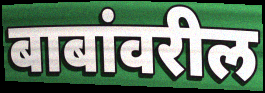
बाबांवरील